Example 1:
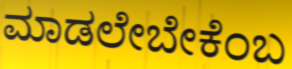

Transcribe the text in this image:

ಮಾಡಲೇಬೇಕೆಂಬ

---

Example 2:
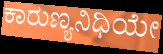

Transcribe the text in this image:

ಕಾರುಣ್ಯನಿಧಿಯೇ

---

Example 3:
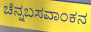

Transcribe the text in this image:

ಚೆನ್ನಬಸವಾಂಕನ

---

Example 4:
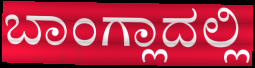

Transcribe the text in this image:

ಬಾಂಗ್ಲಾದಲ್ಲಿ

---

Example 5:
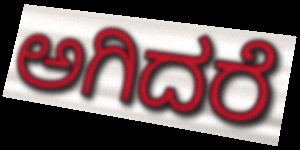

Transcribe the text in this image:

ಅಗಿದರೆ